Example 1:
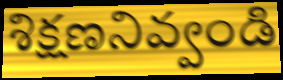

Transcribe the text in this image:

శిక్షణనివ్వండి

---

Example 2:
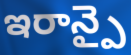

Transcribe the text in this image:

ఇరాన్పై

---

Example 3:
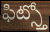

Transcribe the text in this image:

ఫిట్స్తో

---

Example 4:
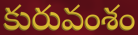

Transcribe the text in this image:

కురువంశం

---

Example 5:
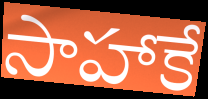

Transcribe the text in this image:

సాహాకే